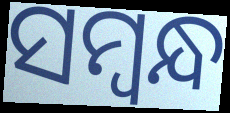
ସମ୍ୱନ୍ଧ